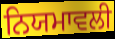
ਨਿਯਮਾਵਲੀ